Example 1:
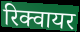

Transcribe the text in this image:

रिक्वायर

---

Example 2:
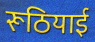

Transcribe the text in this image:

रूठियाई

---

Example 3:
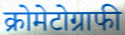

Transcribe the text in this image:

क्रोमेटोग्राफी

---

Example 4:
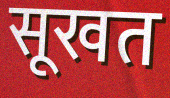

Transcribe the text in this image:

सूखत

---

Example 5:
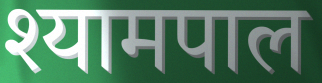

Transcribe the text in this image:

श्यामपाल